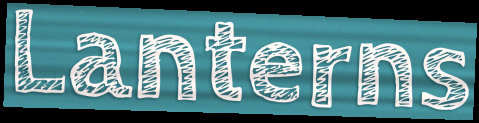
Lanterns